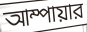
আম্পায়ার